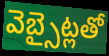
వెబ్సైట్లతో